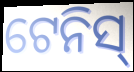
ଟେନିସ୍